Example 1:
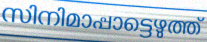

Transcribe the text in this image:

സിനിമാപ്പാട്ടെഴുത്ത്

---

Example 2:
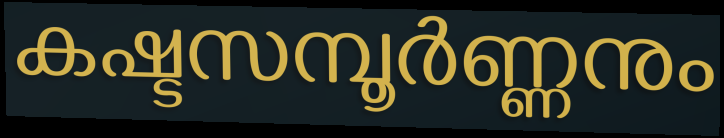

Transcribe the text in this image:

കഷ്ടസമ്പൂർണ്ണനും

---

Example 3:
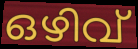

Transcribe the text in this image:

ഒഴിവ്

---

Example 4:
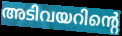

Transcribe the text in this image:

അടിവയറിന്റെ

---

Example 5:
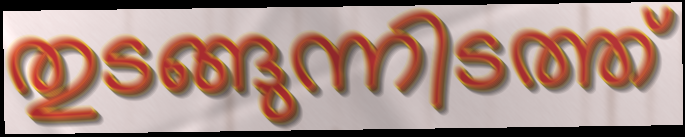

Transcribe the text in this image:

തുടങ്ങുന്നിടത്ത്